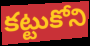
కట్టుకోని